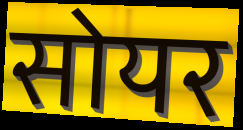
सोयर